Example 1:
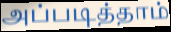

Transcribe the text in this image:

அப்படித்தாம்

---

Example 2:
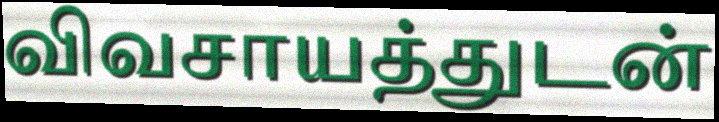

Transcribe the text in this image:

விவசாயத்துடன்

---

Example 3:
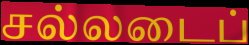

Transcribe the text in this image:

சல்லடைப்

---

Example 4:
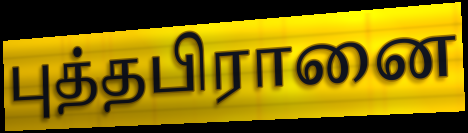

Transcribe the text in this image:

புத்தபிரானை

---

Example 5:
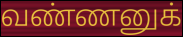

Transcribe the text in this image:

வண்ணனுக்